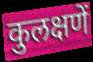
कुलक्षणें